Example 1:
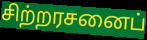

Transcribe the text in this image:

சிற்றரசனைப்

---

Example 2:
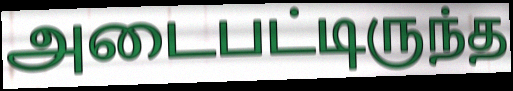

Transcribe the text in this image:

அடைபட்டிருந்த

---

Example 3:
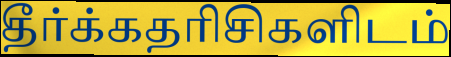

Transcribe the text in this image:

தீர்க்கதரிசிகளிடம்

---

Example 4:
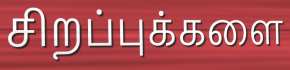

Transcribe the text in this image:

சிறப்புக்களை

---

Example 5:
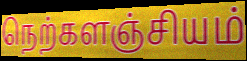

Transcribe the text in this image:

நெற்களஞ்சியம்